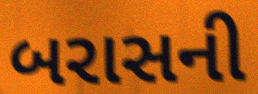
બરાસની